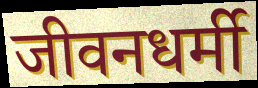
जीवनधर्मी